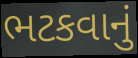
ભટકવાનું